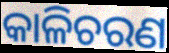
କାଳିଚରଣ